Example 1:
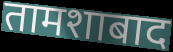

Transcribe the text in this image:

तामशाबाद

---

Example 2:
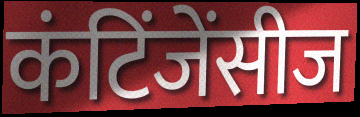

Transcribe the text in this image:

कंटिंजेंसीज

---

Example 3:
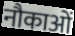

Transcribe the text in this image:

नौकाओं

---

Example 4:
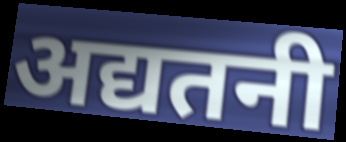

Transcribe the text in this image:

अद्यतनी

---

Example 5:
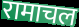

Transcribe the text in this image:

रामाचल